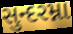
સુન્દરમ્ના